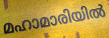
മഹാമാരിയിൽ